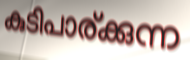
കുടിപാര്ക്കുന്ന